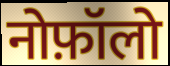
नोफ़ॉलो